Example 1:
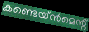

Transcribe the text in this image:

കണ്ടെയ്ൻമെന്റ്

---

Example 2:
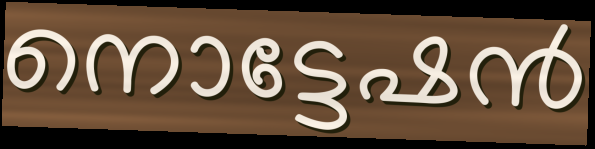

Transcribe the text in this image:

നൊട്ടേഷൻ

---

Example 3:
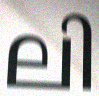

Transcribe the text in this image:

ലി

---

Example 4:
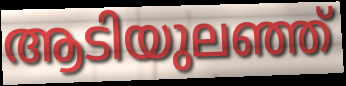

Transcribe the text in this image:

ആടിയുലഞ്ഞ്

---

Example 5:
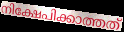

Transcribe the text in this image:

നിക്ഷേപിക്കാത്തത്